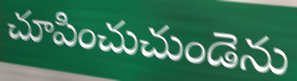
చూపించుచుండెను